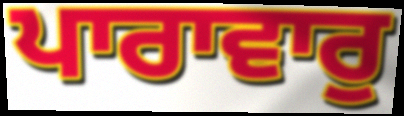
ਪਾਰਾਵਾਰੁ